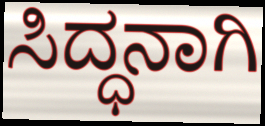
ಸಿದ್ಧನಾಗಿ